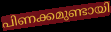
പിണക്കമുണ്ടായി